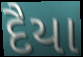
દૈયા